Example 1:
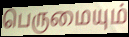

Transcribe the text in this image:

பெருமையும்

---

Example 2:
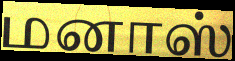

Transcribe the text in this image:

மனாஸ்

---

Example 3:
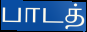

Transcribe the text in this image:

பாடத்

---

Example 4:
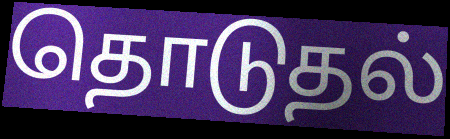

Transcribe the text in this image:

தொடுதல்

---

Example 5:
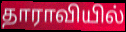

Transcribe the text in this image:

தாராவியில்